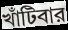
খাঁটিবার